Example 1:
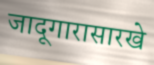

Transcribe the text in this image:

जादूगारासारखे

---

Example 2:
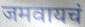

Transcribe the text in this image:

जमवायचं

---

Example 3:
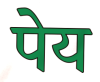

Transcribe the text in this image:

पेय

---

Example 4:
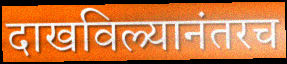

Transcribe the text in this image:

दाखविल्यानंतरच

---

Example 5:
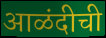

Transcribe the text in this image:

आळंदीची